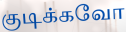
குடிக்கவோ